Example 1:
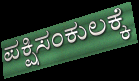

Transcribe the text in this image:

ಪಕ್ಷಿಸಂಕುಲಕ್ಕೆ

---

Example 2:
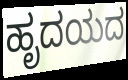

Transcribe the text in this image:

ಹೃದಯದ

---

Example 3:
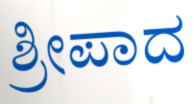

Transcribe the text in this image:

ಶ್ರೀಪಾದ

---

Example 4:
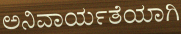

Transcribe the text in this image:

ಅನಿವಾರ್ಯತೆಯಾಗಿ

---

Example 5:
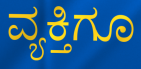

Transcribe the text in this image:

ವ್ಯಕ್ತಿಗೂ